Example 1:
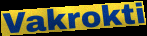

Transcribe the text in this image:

Vakrokti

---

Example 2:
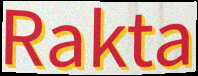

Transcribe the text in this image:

Rakta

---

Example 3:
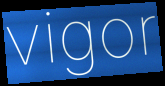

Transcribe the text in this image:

vigor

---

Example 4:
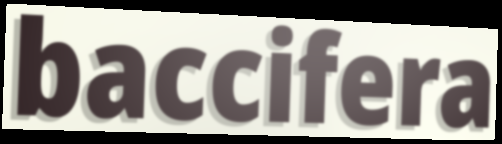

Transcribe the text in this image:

baccifera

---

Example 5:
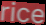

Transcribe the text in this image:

rice